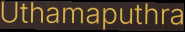
Uthamaputhra